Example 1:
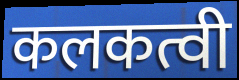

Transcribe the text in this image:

कलकत्वी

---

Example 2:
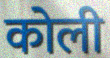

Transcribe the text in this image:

कोली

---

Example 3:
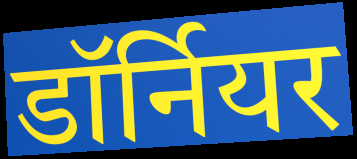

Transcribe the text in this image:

डॉर्नियर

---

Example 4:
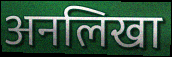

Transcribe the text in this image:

अनलिखा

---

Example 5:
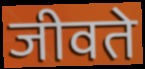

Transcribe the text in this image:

जीवते